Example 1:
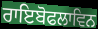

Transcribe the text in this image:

ਰਾਇਬੋਫਲਾਵਿਨ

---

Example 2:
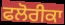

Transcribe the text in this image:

ਫਲੋਰੀਕਾ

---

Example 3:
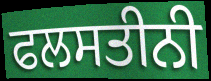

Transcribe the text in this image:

ਫਲਸਤੀਨੀ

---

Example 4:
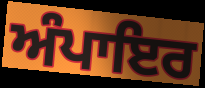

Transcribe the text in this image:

ਅੰਪਾਇਰ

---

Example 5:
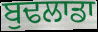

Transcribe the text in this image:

ਬੁਢਲਾਡਾ